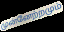
முன்னேற்றமும்